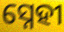
ସ୍ନେହୀ